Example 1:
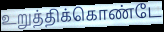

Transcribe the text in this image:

உறுத்திக்கொண்டே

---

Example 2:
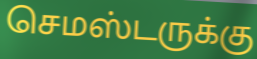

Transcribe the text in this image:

செமஸ்டருக்கு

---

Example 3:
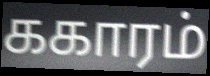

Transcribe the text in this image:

ககாரம்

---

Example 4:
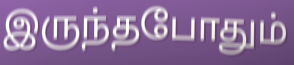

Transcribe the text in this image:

இருந்தபோதும்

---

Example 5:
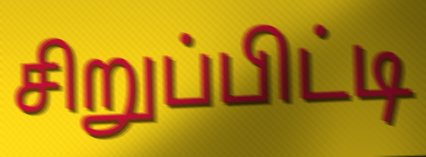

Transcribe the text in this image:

சிறுப்பிட்டி